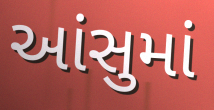
આંસુમાં